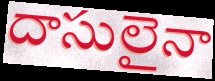
దాసులైనా